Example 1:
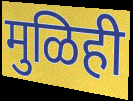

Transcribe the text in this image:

मुळिही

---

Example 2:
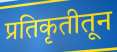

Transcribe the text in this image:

प्रतिकृतीतून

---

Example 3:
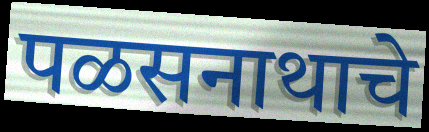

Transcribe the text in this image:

पळसनाथाचे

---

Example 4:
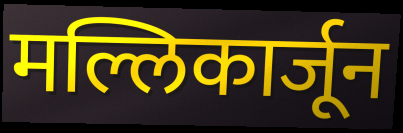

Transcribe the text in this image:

मल्लिकार्जून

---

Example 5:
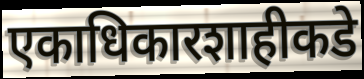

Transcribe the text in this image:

एकाधिकारशाहीकडे